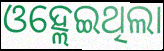
ଓହ୍ଲେଇଥିଲା